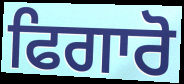
ਫਿਗਾਰੋ